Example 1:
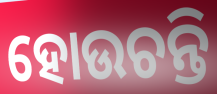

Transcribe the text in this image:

ହୋଉଚନ୍ତି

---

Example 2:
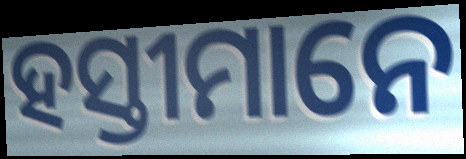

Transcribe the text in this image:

ହସ୍ତୀମାନେ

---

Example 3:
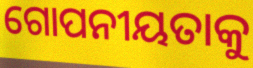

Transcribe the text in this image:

ଗୋପନୀୟତାକୁ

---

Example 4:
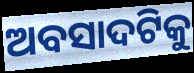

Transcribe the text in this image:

ଅବସାଦଟିକୁ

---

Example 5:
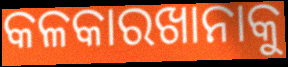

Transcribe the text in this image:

କଳକାରଖାନାକୁ